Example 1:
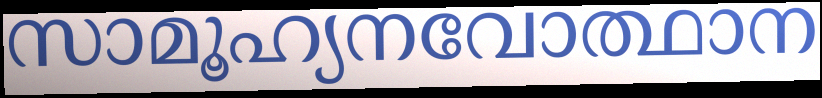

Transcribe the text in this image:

സാമൂഹ്യനവോത്ഥാന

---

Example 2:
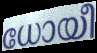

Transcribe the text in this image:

ധോയീ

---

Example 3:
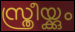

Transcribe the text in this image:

സ്ത്രീയ്ക്കും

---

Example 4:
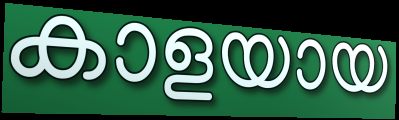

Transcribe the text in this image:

കാളയായ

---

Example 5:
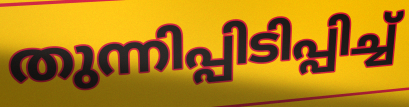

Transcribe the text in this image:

തുന്നിപ്പിടിപ്പിച്ച്